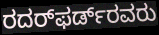
ರದರ್‌ಫರ್ಡ್‌ರವರು